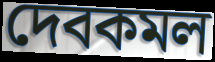
দেবকমল